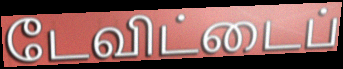
டேவிட்டைப்